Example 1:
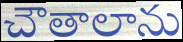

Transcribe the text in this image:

చౌతాలాను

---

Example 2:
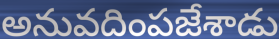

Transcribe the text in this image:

అనువదింపజేశాడు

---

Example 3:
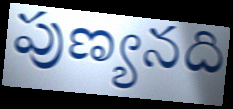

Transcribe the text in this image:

పుణ్యనది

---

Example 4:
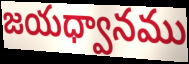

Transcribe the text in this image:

జయధ్వానము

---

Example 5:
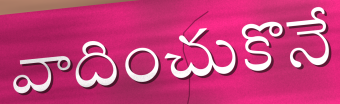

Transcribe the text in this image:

వాదించుకొనే